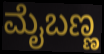
ಮೈಬಣ್ಣ